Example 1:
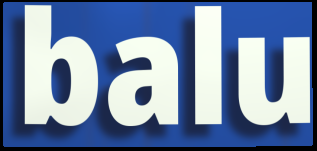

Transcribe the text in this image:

balu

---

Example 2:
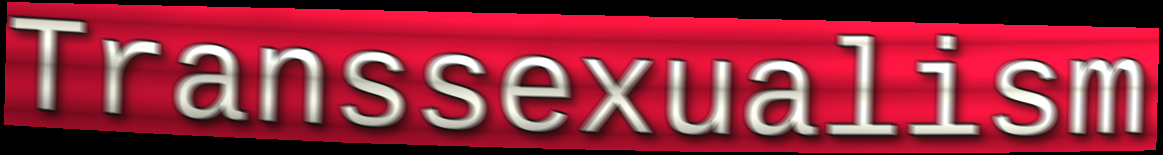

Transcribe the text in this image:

Transsexualism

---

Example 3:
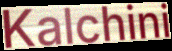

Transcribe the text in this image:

Kalchini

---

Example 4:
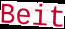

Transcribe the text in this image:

Beit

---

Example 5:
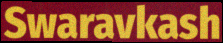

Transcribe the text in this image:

Swaravkash